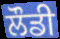
ਲੌਡੀ